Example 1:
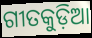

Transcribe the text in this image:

ଗୀତକୁଡ଼ିଆ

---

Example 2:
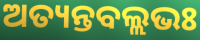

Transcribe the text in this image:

ଅତ୍ୟନ୍ତବଲ୍ଲଭଃ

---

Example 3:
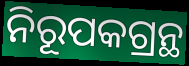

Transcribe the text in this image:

ନିରୂପକଗ୍ରନ୍ଥ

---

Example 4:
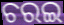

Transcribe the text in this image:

ଚରଇ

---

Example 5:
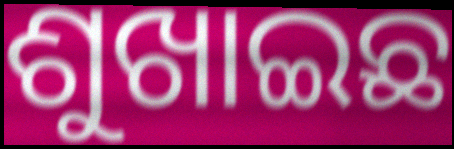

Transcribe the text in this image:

ଶୁଖାଇଛ